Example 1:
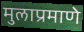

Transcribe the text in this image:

मुलाप्रमाणे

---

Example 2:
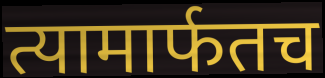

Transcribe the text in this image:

त्यामार्फतच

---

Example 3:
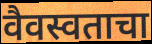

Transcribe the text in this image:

वैवस्वताचा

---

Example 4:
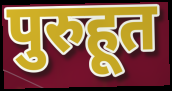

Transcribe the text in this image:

पुरुहूत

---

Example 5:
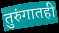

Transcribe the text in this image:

तुरुंगातही